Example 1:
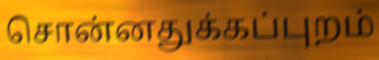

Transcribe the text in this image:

சொன்னதுக்கப்புறம்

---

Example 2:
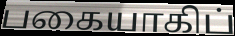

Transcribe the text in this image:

பகையாகிப்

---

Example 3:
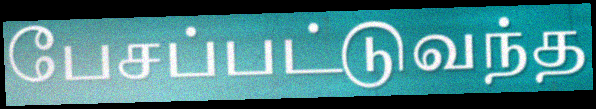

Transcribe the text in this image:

பேசப்பட்டுவந்த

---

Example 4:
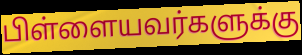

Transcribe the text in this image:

பிள்ளையவர்களுக்கு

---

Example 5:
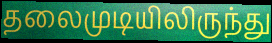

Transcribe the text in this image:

தலைமுடியிலிருந்து